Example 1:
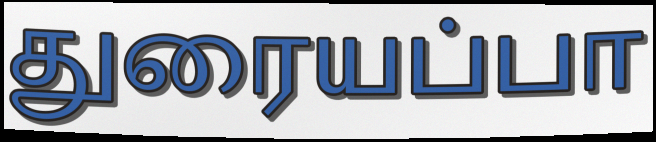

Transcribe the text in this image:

துரையப்பா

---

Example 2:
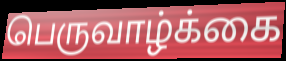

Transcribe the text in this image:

பெருவாழ்க்கை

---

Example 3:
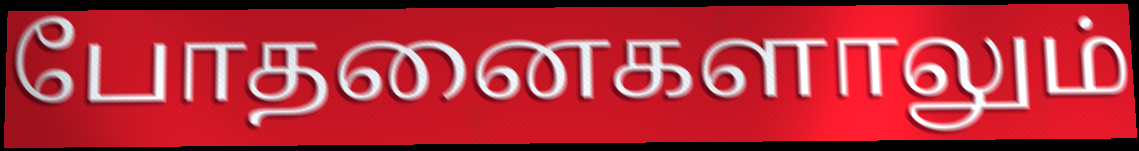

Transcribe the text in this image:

போதனைகளாலும்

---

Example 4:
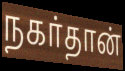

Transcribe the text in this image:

நகர்தான்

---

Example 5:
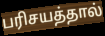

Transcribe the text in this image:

பரிசயத்தால்